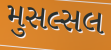
મુસલ્સલ